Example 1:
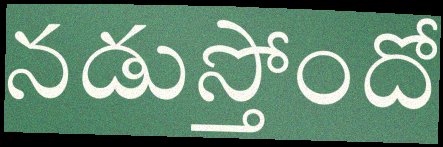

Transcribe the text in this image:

నడుస్తోందో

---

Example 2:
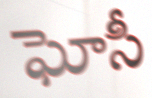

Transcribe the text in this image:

ఘోసీ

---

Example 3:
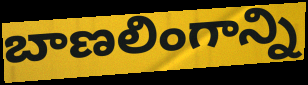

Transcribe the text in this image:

బాణలింగాన్ని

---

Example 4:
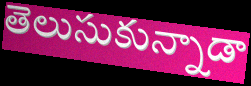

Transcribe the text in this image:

తెలుసుకున్నాడా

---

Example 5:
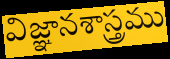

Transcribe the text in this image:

విజ్ఞానశాస్త్రము